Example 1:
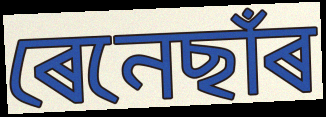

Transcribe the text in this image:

ৰেনেছাঁৰ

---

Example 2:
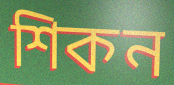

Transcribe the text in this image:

শিকন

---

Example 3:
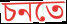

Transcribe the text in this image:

চনতে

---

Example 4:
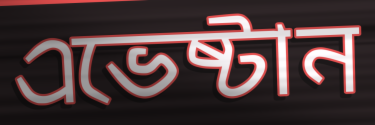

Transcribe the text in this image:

এভেষ্টান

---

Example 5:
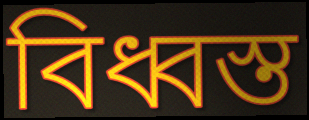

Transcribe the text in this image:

বিধ্বস্ত